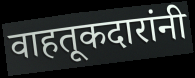
वाहतूकदारांनी